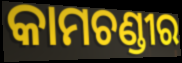
କାମଚଣ୍ଡୀର